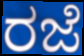
ರಜೆ